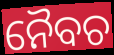
ନୈବଚ